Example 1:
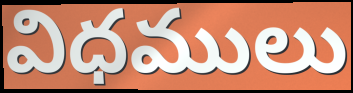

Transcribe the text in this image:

విధములు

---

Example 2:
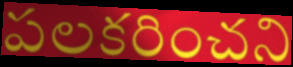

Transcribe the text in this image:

పలకరించని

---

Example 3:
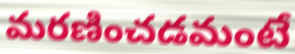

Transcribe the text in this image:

మరణించడమంటే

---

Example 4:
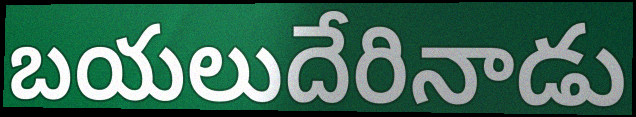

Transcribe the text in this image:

బయలుదేరినాడు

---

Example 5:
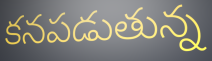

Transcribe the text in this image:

కనపడుతున్న